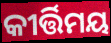
କୀର୍ତ୍ତିମୟ